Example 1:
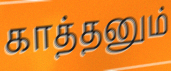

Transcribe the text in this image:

காத்தனும்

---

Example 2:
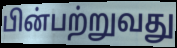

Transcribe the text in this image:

பின்பற்றுவது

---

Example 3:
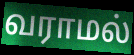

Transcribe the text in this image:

வராமல்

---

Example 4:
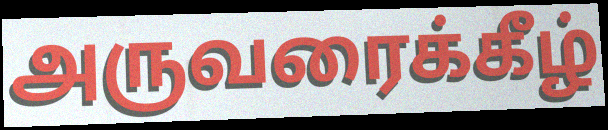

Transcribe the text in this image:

அருவரைக்கீழ்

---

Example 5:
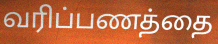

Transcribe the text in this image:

வரிப்பணத்தை